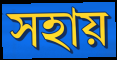
সহায়